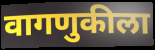
वागणुकीला